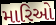
મારિઓ